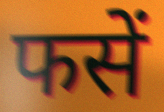
फसें